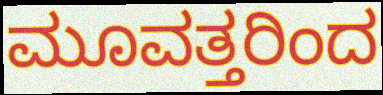
ಮೂವತ್ತರಿಂದ